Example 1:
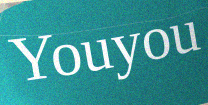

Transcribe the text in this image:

Youyou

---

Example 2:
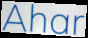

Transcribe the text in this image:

Ahar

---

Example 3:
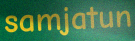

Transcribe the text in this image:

samjatun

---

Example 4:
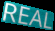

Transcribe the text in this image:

REAL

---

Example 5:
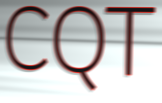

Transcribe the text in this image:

CQT